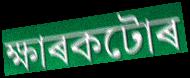
ক্ষাৰকটোৰ